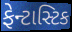
ફેન્ટાસ્ટિક